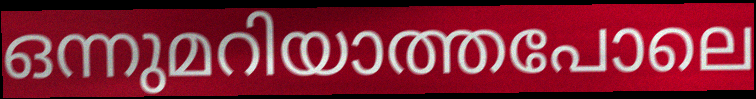
ഒന്നുമറിയാത്തപോലെ